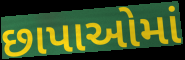
છાપાઓમાં